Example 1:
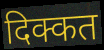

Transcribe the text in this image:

दिक्कत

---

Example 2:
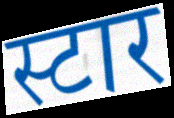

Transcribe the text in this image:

स्टार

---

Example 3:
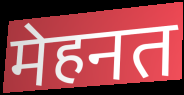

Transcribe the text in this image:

मेहनत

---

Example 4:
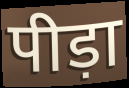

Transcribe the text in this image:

पीड़ा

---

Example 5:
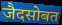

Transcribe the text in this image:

जैदसोबत